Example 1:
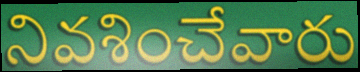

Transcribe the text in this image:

నివశించేవారు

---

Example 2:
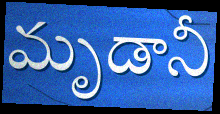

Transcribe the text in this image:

మృడానీ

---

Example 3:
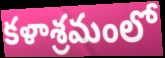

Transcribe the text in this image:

కళాశ్రమంలో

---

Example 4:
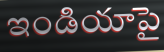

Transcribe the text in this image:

ఇండియాపై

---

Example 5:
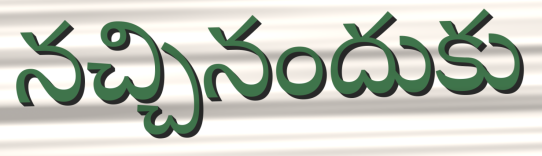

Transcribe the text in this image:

నచ్చినందుకు